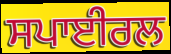
ਸਪਾਈਰਲ